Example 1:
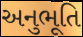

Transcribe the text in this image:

અનુભૂતિ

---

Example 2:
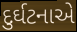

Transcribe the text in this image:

દુર્ઘટનાએ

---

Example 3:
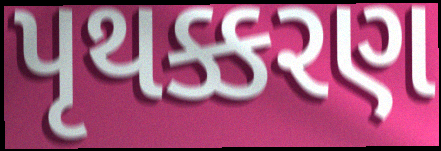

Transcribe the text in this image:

પૃથક્કરણ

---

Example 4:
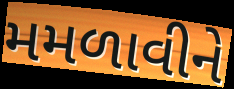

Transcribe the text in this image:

મમળાવીને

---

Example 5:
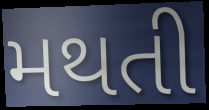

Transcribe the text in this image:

મથતી